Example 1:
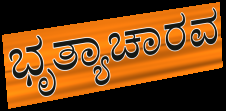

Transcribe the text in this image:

ಭೃತ್ಯಾಚಾರವ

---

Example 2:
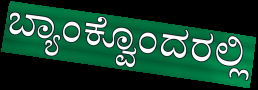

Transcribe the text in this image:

ಬ್ಯಾಂಕ್ವೊಂದರಲ್ಲಿ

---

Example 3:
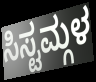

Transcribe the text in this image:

ಸಿಸ್ಟಮ್ಗಳ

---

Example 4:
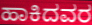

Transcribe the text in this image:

ಹಾಕಿದವರ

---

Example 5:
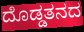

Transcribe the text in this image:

ದೊಡ್ಡತನದ